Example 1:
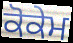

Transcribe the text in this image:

ਕੋਕੇਮ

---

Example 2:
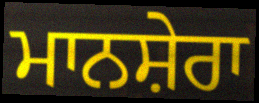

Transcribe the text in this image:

ਮਾਨਸ਼ੇਰਾ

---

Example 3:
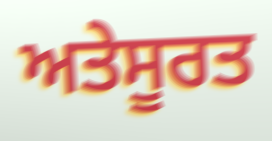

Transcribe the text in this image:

ਅਤੇਸੂਰਤ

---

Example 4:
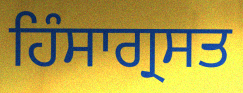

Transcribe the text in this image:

ਹਿੰਸਾਗ੍ਰਸਤ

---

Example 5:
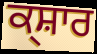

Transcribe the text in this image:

ਕ੍ਸ਼ਾਰ